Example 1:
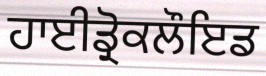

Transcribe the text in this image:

ਹਾਈਡ੍ਰੋਕਲੌਇਡ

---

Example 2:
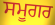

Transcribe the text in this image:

ਸਮੂਗਰ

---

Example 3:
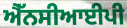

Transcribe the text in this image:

ਐੱਨਸੀਆਈਪੀ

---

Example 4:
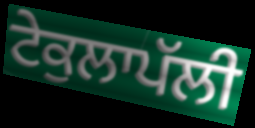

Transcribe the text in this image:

ਟੇਕੁਲਾਪੱਲੀ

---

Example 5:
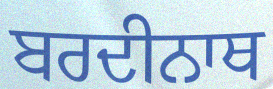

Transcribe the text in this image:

ਬਰਦੀਨਾਥ